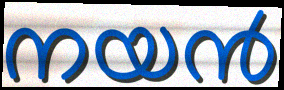
നയൻ